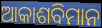
ଆକାଶବିମାନ